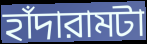
হাঁদারামটা